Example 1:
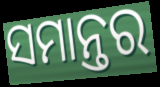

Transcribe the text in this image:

ସମାନ୍ତର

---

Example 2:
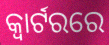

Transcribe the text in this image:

କ୍ଵାର୍ଟରରେ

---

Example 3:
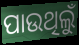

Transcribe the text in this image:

ପାଉଥିଲୁଁ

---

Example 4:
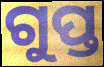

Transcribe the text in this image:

ଗୁପ୍ତ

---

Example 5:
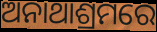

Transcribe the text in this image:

ଅନାଥାଶ୍ରମରେ